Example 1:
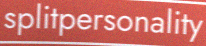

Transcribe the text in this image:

splitpersonality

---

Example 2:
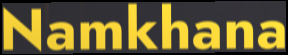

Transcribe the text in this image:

Namkhana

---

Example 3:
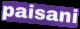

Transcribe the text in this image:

paisani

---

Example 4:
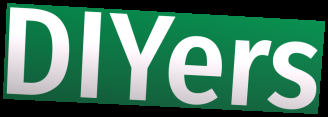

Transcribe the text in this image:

DIYers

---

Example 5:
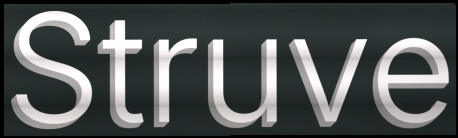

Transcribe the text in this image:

Struve